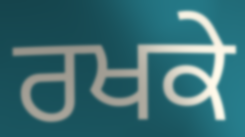
ਰਖਕੇ